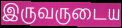
இருவருடைய